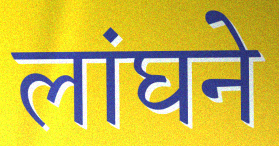
लांघने